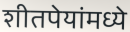
शीतपेयांमध्ये